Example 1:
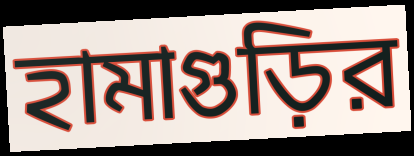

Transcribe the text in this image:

হামাগুড়ির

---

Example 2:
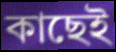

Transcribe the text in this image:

কাছেই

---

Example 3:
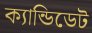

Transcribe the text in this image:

ক্যান্ডিডেট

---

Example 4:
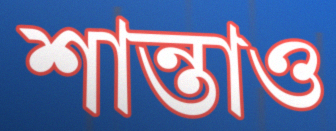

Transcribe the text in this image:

শান্তাও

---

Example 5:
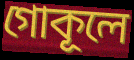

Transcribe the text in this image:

গোকূলে